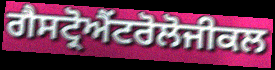
ਗੈਸਟ੍ਰੋਐਂਟਰੋਲੋਜੀਕਲ